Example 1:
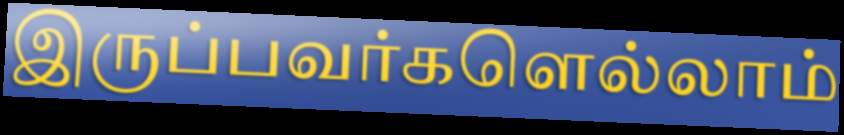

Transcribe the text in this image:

இருப்பவர்களெல்லாம்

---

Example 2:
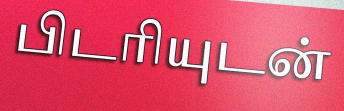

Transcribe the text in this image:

பிடரியுடன்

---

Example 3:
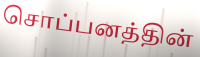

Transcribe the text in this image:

சொப்பனத்தின்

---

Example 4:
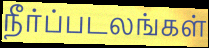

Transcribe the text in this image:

நீர்ப்படலங்கள்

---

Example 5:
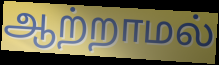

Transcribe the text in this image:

ஆற்றாமல்